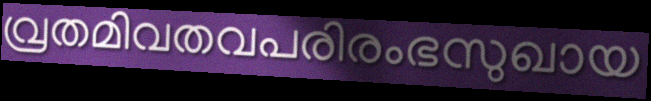
വ്രതമിവതവപരിരംഭസുഖായ